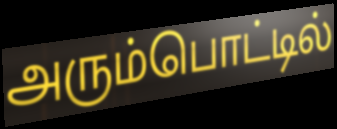
அரும்பொட்டில்